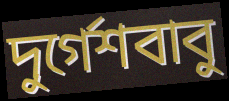
দুর্গেশবাবু